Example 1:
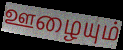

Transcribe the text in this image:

ஊழையும்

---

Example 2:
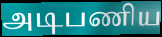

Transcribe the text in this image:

அடிபணிய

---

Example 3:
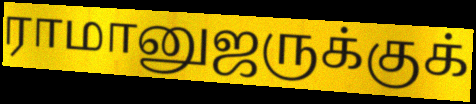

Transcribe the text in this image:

ராமானுஜருக்குக்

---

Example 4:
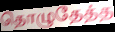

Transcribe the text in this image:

தொழுதேத்த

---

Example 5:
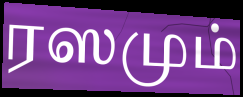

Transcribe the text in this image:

ரஸமும்